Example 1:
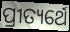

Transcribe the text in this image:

ପ୍ରୀତ୍ୟର୍ଥେ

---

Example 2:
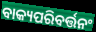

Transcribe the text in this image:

ବାକ୍ୟପରିବର୍ତ୍ତନଂ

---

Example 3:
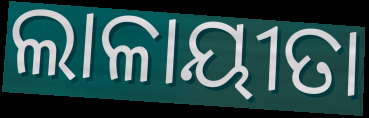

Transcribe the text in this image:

ଲାଳାୟୀତା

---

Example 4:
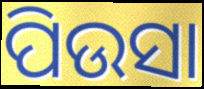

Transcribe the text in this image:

ପିଉସା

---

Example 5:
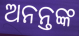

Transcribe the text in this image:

ଅନନ୍ତଙ୍କ